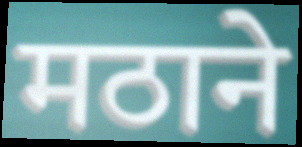
मठाने